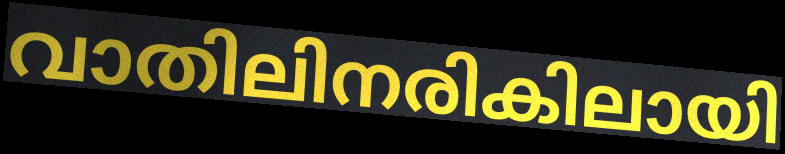
വാതിലിനരികിലായി